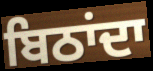
ਬਿਠਾਂਦਾ